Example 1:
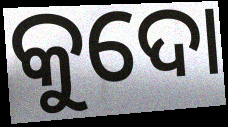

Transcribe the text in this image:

କୁଦୋ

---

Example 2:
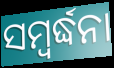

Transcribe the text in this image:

ସମ୍ୱର୍ଦ୍ଧନା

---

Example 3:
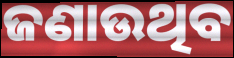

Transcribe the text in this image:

ଜଣାଉଥିବ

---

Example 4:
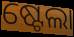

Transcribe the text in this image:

ଷ୍ଟେଲା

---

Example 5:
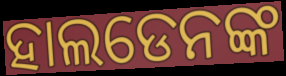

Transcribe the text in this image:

ହାଲଡେନଙ୍କ